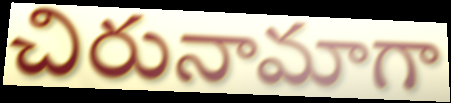
చిరునామాగా